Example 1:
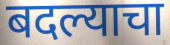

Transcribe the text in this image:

बदल्याचा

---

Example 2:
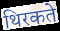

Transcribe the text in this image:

थिरकते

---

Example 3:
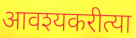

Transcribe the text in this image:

आवश्यकरीत्या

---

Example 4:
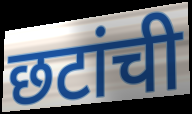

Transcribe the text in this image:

छटांची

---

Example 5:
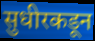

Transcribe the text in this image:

सुधीरकडून